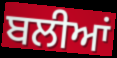
ਬਲੀਆਂ